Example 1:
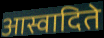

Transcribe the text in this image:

आस्वादिते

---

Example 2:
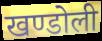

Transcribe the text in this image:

खण्डोली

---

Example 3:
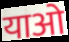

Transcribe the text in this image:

याओ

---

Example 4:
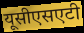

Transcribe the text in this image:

यूसीएसएटी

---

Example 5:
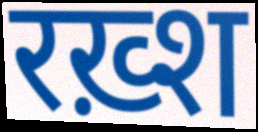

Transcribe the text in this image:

रख़्श